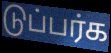
டுப்பர்க